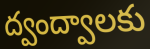
ద్వంద్వాలకు